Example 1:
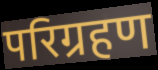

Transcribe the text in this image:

परिग्रहण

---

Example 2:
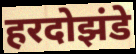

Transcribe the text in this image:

हरदोझंडे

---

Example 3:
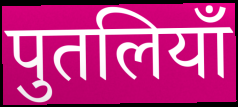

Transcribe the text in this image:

पुतलियाँ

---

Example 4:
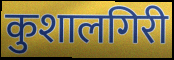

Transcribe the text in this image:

कुशालगिरी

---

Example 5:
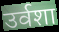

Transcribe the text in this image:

उर्वशा